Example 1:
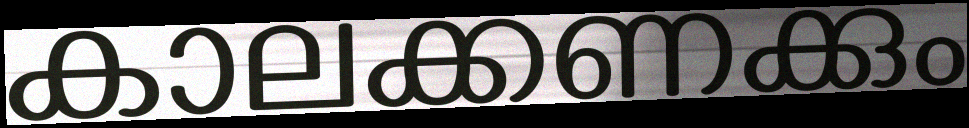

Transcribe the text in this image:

കാലക്കണക്കും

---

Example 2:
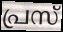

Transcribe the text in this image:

പ്രസ്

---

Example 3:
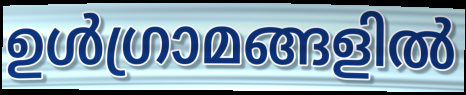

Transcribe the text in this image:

ഉൾഗ്രാമങ്ങളിൽ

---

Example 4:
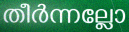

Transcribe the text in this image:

തീർന്നല്ലോ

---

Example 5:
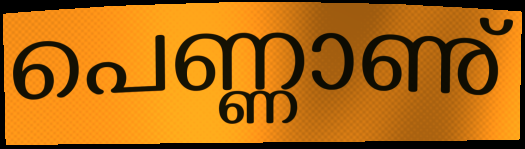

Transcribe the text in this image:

പെണ്ണാണു്